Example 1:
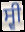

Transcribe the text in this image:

ਸ੍ਵੀ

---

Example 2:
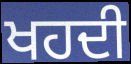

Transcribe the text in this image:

ਖਹਦੀ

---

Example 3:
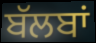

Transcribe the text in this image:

ਬੱਲਬਾਂ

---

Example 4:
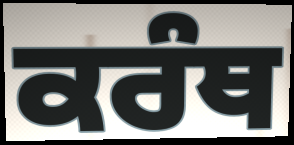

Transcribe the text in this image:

ਕਰੰਥ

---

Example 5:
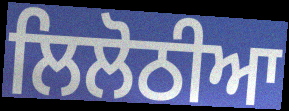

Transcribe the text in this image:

ਲਿਲੋਠੀਆ